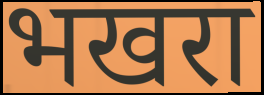
भखरा